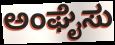
ಅಂಘೈಸು